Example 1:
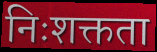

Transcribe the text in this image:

निःशक्तता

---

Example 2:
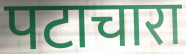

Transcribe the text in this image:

पटाचारा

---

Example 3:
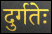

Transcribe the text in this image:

दुर्गतेः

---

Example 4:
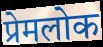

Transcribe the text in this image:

प्रेमलोक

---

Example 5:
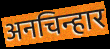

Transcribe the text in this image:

अनचिन्हार